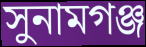
সুনামগঞ্জ